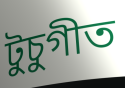
টুচুগীত